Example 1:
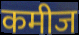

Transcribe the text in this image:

कमीज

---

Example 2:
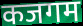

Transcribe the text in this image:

कजगम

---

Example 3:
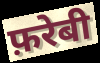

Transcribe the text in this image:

फ़रेबी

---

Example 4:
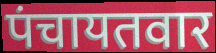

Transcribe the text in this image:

पंचायतवार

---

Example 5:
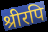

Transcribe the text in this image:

श्रीरपि